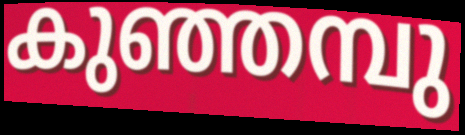
കുഞ്ഞമ്പു